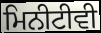
ਮਿਨੀਟੀਵੀ